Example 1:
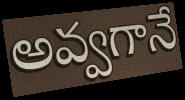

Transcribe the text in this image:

అవ్వగానే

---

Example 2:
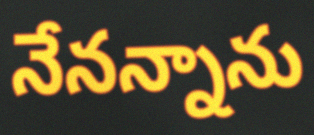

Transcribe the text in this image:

నేనన్నాను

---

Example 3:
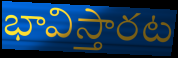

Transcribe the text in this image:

భావిస్తారట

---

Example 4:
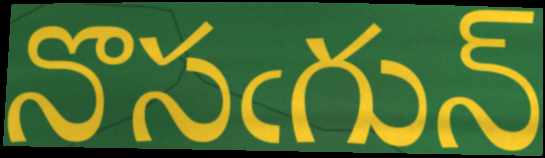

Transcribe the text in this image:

నొసఁగున్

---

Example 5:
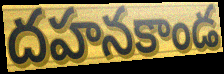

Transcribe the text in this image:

దహనకాండ